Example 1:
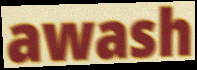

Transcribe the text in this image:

awash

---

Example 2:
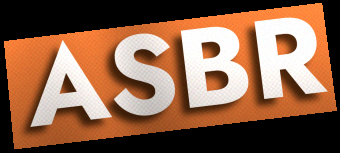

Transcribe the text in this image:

ASBR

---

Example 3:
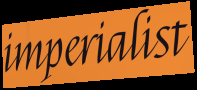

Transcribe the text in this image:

imperialist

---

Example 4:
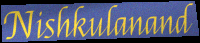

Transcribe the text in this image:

Nishkulanand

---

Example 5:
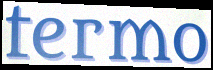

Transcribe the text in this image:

termo